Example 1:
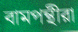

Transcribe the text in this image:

বামপন্থীরা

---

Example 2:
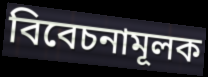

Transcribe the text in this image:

বিবেচনামূলক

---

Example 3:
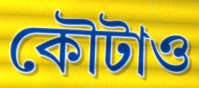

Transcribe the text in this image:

কৌটাও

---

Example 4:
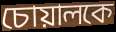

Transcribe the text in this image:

চোয়ালকে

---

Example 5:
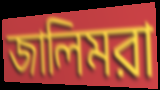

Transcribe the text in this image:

জালিমরা